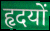
हृदयों